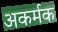
अकर्मक